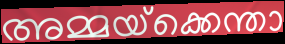
അമ്മയ്‌ക്കെന്താ